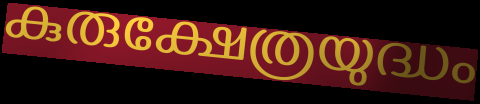
കുരുക്ഷേത്രയുദ്ധം